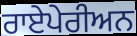
ਰਾਏਪੇਰੀਅਨ